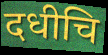
दधीचि